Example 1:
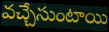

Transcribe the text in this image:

వచ్చేసుంటాయి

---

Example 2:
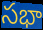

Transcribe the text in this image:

సభా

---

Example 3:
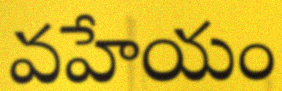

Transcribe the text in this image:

వహేయం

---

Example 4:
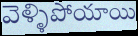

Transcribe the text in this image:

వెళ్ళిపోయాయి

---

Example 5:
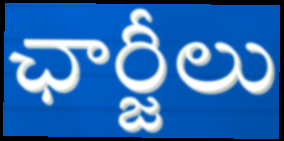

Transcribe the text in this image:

ఛార్జీలు